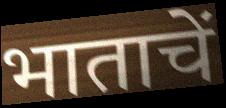
भाताचें